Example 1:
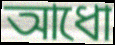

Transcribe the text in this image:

আধো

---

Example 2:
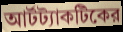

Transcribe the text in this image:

আর্টট্যাকটিকের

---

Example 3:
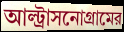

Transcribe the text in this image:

আল্ট্রাসনোগ্রামের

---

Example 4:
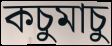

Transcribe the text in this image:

কচুমাচু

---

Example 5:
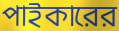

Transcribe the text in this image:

পাইকারের